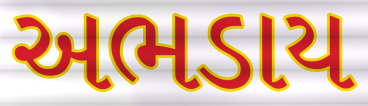
અભડાય